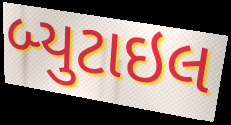
બ્યુટાઇલ